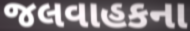
જલવાહકના